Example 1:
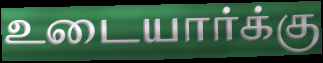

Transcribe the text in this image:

உடையார்க்கு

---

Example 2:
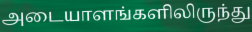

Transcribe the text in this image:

அடையாளங்களிலிருந்து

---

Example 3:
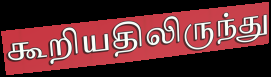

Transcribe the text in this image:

கூறியதிலிருந்து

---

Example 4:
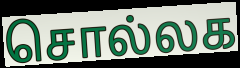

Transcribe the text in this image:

சொல்லக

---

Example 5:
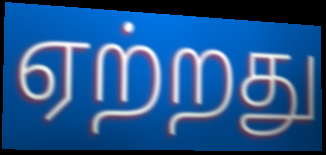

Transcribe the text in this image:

ஏற்றது